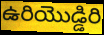
ఉరియొడ్డిరి